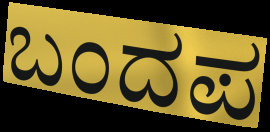
ಬಂದಪ